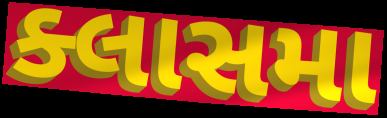
ક્લાસમા